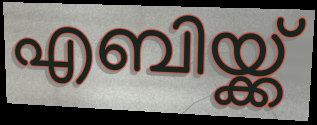
എബിയ്ക്ക്